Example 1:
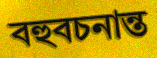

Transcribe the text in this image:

বহুবচনান্ত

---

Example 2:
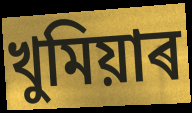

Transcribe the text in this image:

খুমিয়াৰ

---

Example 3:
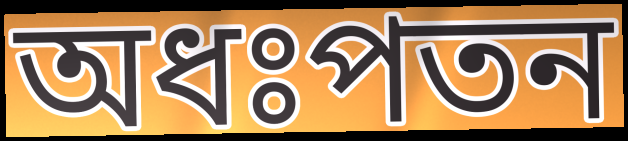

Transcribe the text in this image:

অধঃপতন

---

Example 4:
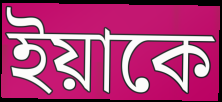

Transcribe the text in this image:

ইয়াকে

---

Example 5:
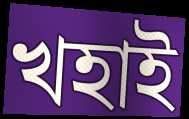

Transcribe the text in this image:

খহাই